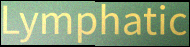
Lymphatic